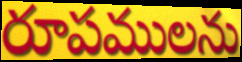
రూపములను